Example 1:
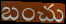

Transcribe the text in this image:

బంచు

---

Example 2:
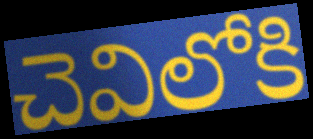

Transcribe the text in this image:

చెవిలోకి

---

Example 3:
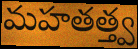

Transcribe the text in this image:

మహతత్త్వ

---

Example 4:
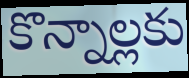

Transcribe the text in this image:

కొన్నాల్లకు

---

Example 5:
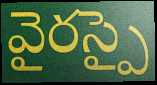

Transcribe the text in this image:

వైరస్పై